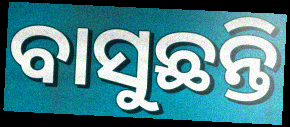
ବାସୁଛନ୍ତି